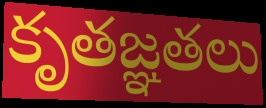
కృతజ్ఞతలు